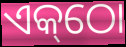
ଏକ୍‌ଠୋ